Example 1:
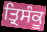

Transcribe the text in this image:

ਤ੍ਰਿਸੰਕੂ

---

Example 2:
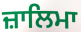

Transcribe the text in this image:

ਜ਼ਾਲਿਮਾ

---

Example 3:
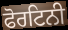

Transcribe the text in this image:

ਫੋਰਟਿਨੀ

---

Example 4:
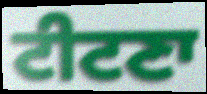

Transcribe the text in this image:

ਟੀਟਣਾ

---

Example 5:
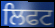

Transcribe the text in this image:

ਲਿਫਟ